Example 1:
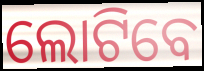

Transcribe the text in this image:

ଲୋଟିବେ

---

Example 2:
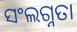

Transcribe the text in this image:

ସଂଲଗ୍ନତା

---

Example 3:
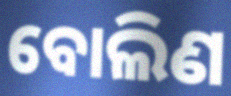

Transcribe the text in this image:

ବୋଲିଣ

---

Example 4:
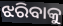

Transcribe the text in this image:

ଝରିବାକୁ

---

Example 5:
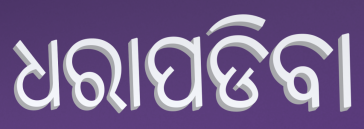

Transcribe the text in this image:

ଧରାପଡିବା